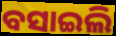
ବସାଇଲି